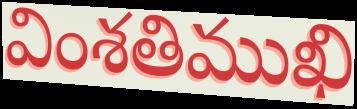
వింశతిముఖి